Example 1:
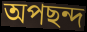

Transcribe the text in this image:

অপছন্দ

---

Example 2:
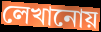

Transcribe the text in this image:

লেখানোয়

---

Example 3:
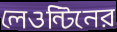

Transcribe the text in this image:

লেওন্টিনের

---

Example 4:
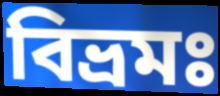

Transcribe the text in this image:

বিভ্রমঃ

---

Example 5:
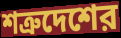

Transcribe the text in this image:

শত্রুদেশের